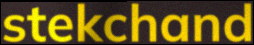
stekchand